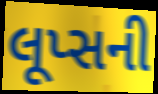
લૂપ્સની